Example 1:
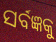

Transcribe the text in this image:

ସର୍ବଜ୍ଞକୁ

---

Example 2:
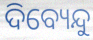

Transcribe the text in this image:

ଦିବ୍ୟେନ୍ଦୁ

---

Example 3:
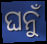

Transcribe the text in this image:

ଘନୁଁ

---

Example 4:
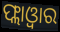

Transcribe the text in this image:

ଫ୍ଲାଓ୍ବାର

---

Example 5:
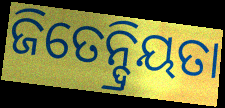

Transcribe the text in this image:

ଜିତେନ୍ଦ୍ରିୟତା